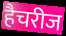
हैचरीज